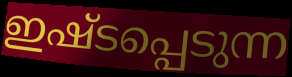
ഇഷ്ടപ്പെടുന്ന